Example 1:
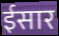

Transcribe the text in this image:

ईसार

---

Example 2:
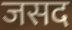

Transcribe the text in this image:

जसद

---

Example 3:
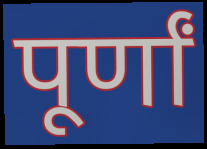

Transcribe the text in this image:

पूर्णां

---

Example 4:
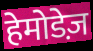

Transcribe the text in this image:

हेमोडेज़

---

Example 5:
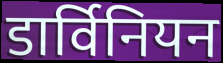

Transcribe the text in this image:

डार्विनियन